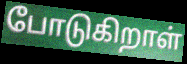
போடுகிறாள்